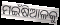
ମଇଁଷିଆଳକୁ